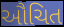
ઔચિત